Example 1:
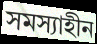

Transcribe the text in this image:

সমস্যাহীন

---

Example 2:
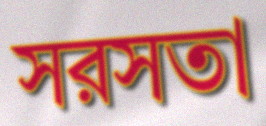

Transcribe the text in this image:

সরসতা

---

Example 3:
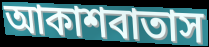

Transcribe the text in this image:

আকাশবাতাস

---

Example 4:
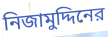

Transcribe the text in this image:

নিজামুদ্দিনের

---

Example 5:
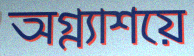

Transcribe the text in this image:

অগ্ন্যাশয়ে